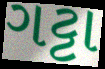
ગટ્ટા